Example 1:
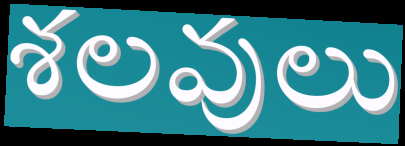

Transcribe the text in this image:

శలవులు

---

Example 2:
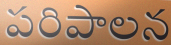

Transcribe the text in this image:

పరిపాలన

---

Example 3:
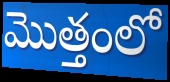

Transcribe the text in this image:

మొత్తంలో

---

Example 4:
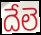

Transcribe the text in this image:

దేలె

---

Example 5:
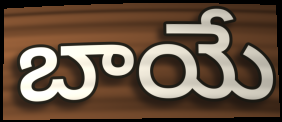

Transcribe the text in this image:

బాయే